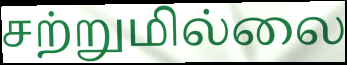
சற்றுமில்லை